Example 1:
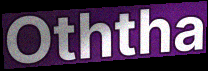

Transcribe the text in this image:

Oththa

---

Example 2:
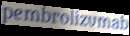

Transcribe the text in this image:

pembrolizumab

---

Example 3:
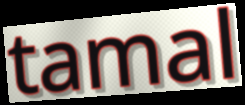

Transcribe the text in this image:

tamal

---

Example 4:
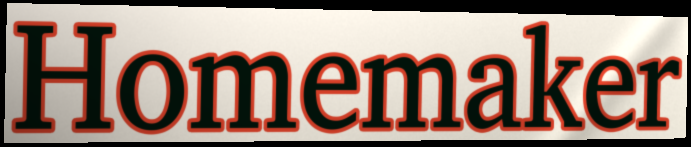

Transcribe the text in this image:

Homemaker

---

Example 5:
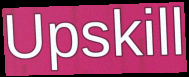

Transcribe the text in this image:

Upskill